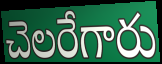
చెలరేగారు